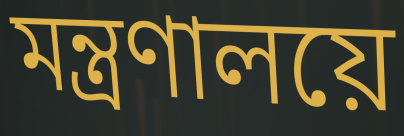
মন্ত্ৰণালয়ে